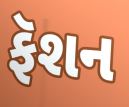
ફૅશન